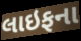
લાઇફના